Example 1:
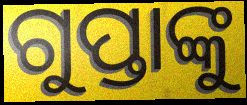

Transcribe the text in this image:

ଗୁପ୍ତାଙ୍କୁ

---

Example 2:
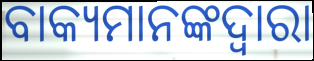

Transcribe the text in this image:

ବାକ୍ୟମାନଙ୍କଦ୍ୱାରା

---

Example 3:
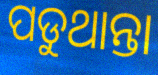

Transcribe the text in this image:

ପଡୁଥାନ୍ତା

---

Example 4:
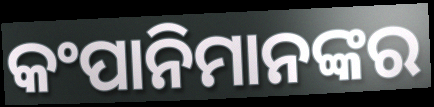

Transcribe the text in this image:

କଂପାନିମାନଙ୍କର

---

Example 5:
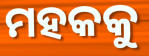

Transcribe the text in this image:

ମହକକୁ